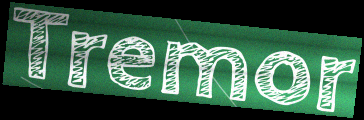
Tremor